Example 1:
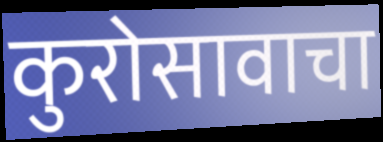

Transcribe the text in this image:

कुरोसावाचा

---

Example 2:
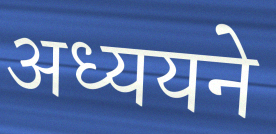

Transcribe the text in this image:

अध्ययने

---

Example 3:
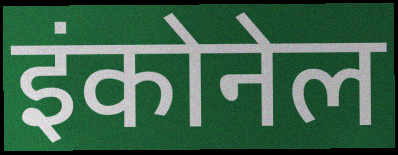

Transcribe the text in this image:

इंकोनेल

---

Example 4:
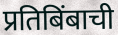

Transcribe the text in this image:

प्रतिबिंबाची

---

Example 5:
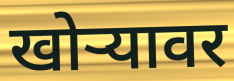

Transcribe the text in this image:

खोऱ्यावर